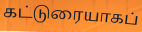
கட்டுரையாகப்